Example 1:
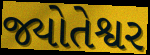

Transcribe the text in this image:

જ્યોતેશ્વર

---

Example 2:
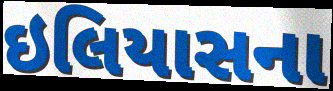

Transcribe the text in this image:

ઇલિયાસના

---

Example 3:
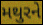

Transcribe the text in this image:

મથુરને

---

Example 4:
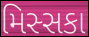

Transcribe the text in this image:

મિસ્સકા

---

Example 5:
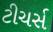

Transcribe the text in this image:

ટીચર્સ